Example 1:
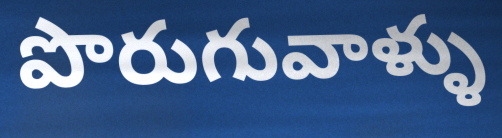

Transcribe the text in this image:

పొరుగువాళ్ళు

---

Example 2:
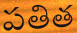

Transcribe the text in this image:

పతిత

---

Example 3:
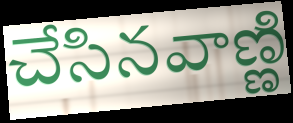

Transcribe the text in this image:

చేసినవాణ్ణి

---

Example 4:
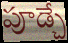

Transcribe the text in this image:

పూడ్చే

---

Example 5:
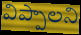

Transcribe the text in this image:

విప్పాలని